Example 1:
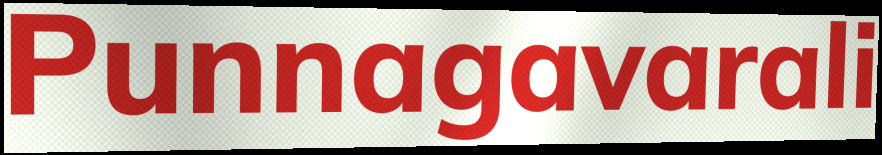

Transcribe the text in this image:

Punnagavarali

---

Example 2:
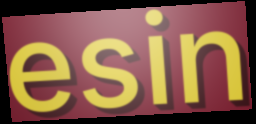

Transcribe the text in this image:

esin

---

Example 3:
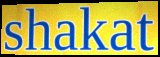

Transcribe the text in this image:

shakat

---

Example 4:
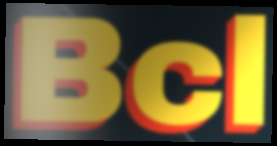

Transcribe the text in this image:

Bcl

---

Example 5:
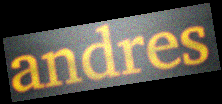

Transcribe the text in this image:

andres